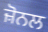
ਜ਼ੋਨਲ